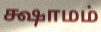
க்ஷாமம்